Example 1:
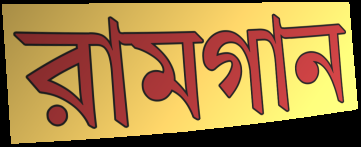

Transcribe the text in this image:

রামগান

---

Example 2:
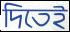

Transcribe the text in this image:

দিতেই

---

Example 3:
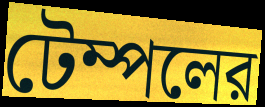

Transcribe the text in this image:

টেম্পলের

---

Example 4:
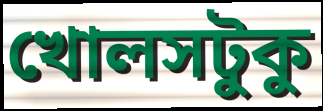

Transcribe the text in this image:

খোলসটুকু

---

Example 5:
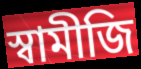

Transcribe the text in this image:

স্বামীজি